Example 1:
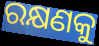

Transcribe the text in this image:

ରକ୍ଷଣକୁ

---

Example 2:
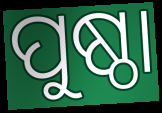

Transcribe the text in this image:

ପୁଷ୍ଠା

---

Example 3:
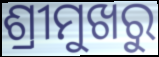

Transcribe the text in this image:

ଶ୍ରୀମୁଖରୁ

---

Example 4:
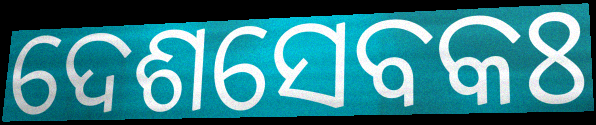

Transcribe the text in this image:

ଦେଶସେବକଃ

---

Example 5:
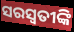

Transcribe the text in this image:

ସରସ୍ୱତୀଙ୍କି